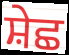
ਸ਼ੇਛ